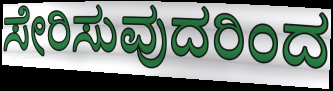
ಸೇರಿಸುವುದರಿಂದ